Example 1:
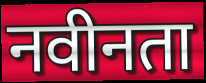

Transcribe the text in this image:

नवीनता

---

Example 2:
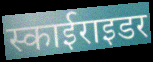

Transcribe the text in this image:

स्काईराइडर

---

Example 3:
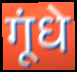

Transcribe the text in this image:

गूंधे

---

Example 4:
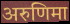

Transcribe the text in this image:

अरुणिमा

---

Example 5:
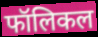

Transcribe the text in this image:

फॉलिकल